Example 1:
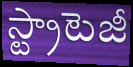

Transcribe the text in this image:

స్ట్రాటెజీ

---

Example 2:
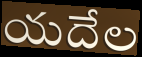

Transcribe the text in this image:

యదేల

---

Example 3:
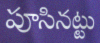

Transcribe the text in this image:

పూసినట్టు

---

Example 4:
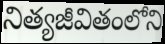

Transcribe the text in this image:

నిత్యజీవితంలోని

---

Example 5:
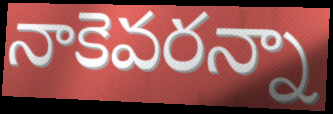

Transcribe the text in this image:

నాకెవరన్నా